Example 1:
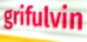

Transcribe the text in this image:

grifulvin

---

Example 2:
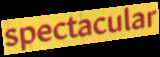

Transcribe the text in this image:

spectacular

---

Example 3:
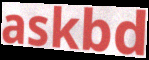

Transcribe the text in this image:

askbd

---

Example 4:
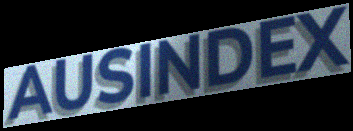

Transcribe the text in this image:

AUSINDEX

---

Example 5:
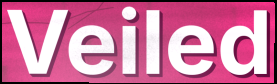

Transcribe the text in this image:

Veiled